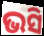
ଭସି